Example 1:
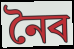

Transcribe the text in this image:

নৈব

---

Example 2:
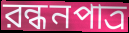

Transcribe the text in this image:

রন্ধনপাত্র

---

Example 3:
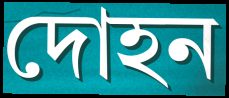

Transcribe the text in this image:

দোহন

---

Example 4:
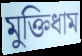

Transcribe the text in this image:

মুক্তিধাম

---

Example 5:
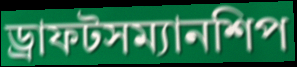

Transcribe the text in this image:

ড্রাফটসম্যানশিপ